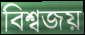
বিশ্বজয়